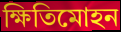
ক্ষিতিমোহন